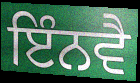
ਇੰਨਵੈ